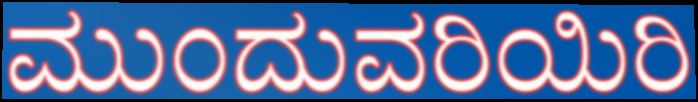
ಮುಂದುವರಿಯಿರಿ